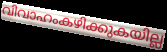
വിവാഹംകഴിക്കുകയില്ല